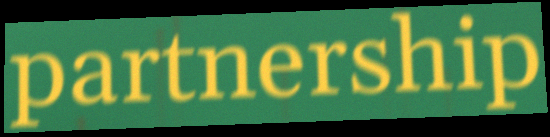
partnership